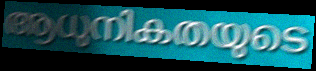
ആധുനികതയുടെ